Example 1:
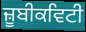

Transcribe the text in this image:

ਜ਼ੂਬੀਕਵਿਟੀ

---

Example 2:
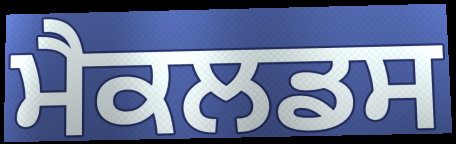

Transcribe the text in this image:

ਮੈਕਲਡਸ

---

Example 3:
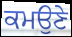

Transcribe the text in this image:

ਕਮਉਣੇ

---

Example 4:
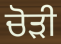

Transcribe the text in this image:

ਚੋੜੀ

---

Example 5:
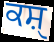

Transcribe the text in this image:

ਕਸ਼ੑ